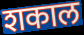
शकाल